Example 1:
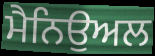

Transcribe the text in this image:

ਮੈਨਿਉਅਲ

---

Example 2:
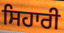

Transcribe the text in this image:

ਸਿਹਾਰੀ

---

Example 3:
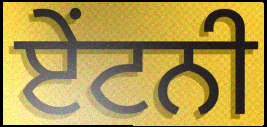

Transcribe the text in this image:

ਏਂਟਨੀ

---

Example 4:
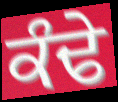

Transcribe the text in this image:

ਕੰਢੇ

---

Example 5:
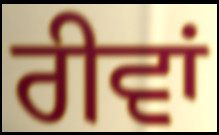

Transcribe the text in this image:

ਰੀਵਾਂ